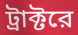
ট্রাক্টরে